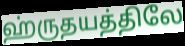
ஹ்ருதயத்திலே